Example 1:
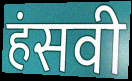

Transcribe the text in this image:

हंसवी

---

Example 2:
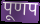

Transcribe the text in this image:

पूणप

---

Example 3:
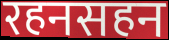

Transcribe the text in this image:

रहनसहन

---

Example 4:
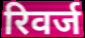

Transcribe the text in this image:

रिवर्ज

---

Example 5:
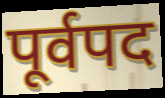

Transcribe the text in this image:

पूर्वपद